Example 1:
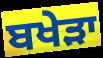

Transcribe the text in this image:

ਬਖੇੜਾ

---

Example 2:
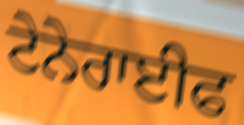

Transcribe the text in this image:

ਟੇਨੇਰਾਈਫ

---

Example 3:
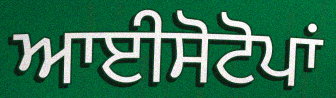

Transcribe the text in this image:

ਆਈਸੋਟੋਪਾਂ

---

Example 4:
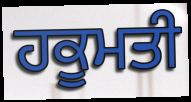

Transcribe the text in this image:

ਹਕੂਮਤੀ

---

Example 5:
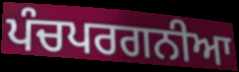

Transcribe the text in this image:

ਪੰਚਪਰਗਨੀਆ